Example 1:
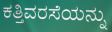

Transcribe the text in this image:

ಕತ್ತಿವರಸೆಯನ್ನು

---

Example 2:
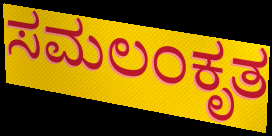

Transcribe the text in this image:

ಸಮಲಂಕೃತ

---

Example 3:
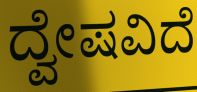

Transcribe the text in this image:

ದ್ವೇಷವಿದೆ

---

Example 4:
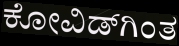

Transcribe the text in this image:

ಕೋವಿಡ್‌ಗಿಂತ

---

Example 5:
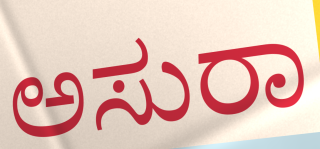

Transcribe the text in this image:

ಅಸುರಾ